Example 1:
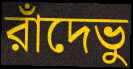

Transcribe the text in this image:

রাঁদেভু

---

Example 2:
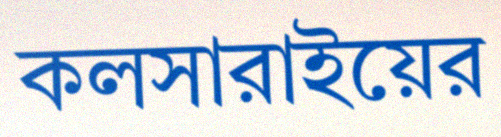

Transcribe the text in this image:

কলসারাইয়ের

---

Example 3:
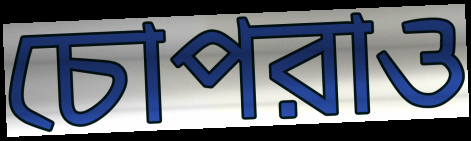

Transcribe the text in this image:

চোপরাও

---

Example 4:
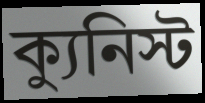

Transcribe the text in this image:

ক্যুনিস্ট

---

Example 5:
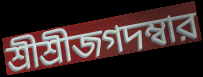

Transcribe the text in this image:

শ্রীশ্রীজগদম্বার